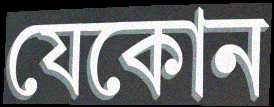
যেকোন